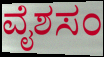
ವೈಶಸಂ